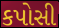
કપોસી